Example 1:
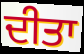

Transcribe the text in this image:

ਦੀਤਾ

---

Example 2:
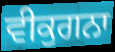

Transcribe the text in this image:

ਵੀਕੁਗਨਾ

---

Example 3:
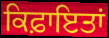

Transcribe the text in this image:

ਕਿਫ਼ਾਇਤਾਂ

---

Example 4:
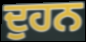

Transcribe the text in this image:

ਦੁਹਨ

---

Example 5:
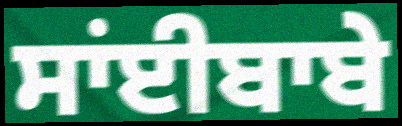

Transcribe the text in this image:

ਸਾਂਈਬਾਬੇ